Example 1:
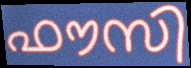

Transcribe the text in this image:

ഫൗസി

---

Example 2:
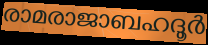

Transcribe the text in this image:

രാമരാജാബഹദൂർ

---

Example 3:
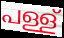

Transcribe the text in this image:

പള്ള്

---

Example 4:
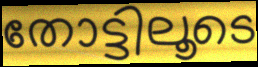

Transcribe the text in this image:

തോട്ടിലൂടെ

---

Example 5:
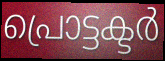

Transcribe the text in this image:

പ്രൊട്ടക്ടർ